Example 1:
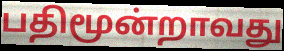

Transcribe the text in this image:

பதிமூன்றாவது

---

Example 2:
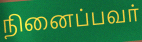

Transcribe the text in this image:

நினைப்பவர்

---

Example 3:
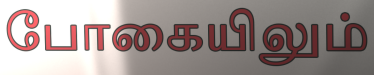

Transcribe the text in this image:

போகையிலும்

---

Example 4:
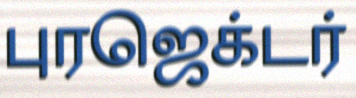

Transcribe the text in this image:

புரஜெக்டர்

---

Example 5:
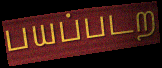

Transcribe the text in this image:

பயப்படற